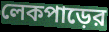
লেকপাড়ের